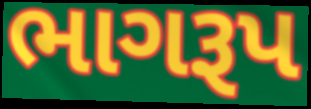
ભાગરૂપ